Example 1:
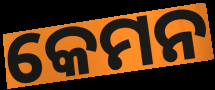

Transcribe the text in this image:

କେମନ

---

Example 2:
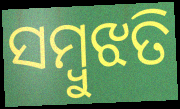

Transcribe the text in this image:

ସମ୍ବୁଝତି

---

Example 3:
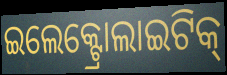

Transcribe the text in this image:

ଇଲେକ୍ଟ୍ରୋଲାଇଟିକ୍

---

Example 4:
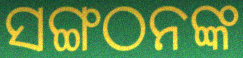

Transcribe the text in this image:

ସଙ୍ଗଠନଙ୍କ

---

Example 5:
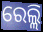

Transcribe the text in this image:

ରେଲ୍ଲି